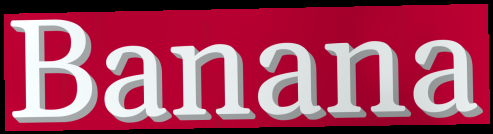
Banana